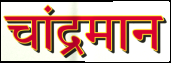
चांद्रमान